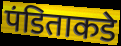
पंडिताकडे